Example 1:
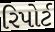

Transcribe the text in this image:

રિપોર્ટ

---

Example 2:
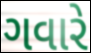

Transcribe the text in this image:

ગવારે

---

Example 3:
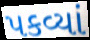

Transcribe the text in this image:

પકવ્યાં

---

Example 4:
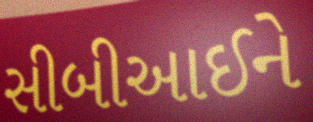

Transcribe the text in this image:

સીબીઆઈને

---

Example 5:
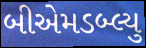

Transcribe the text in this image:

બીએમડબ્લ્યુ